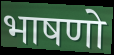
भाषणो